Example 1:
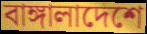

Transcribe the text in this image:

বাঙ্গালাদেশে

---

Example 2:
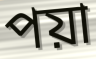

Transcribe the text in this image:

পয়া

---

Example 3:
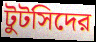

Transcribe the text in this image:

টুটসিদের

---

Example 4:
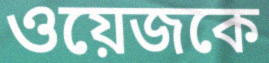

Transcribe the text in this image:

ওয়েজকে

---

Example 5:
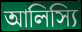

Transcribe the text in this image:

আলিস্যি